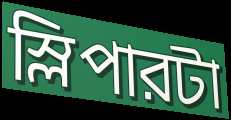
স্লিপারটা